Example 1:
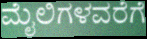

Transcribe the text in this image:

ಮೈಲಿಗಳವರೆಗೆ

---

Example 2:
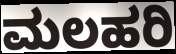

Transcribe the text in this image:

ಮಲಹರಿ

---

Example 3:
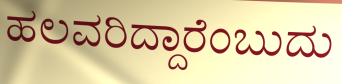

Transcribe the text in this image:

ಹಲವರಿದ್ದಾರೆಂಬುದು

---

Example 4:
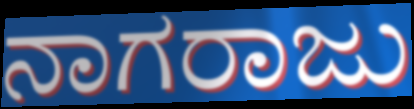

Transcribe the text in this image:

ನಾಗರಾಜು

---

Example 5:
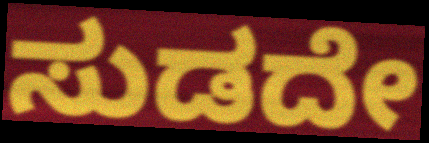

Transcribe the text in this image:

ಸುಡದೇ